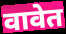
वावेत